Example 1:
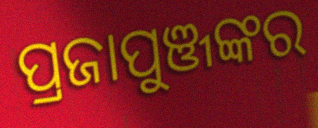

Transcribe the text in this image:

ପ୍ରଜାପୁଞ୍ଜଙ୍କର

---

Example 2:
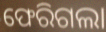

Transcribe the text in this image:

ଫେରିଗଲା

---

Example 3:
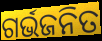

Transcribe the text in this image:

ଗର୍ଭଜନିତ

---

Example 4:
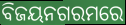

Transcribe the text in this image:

ବିଜୟନଗରମରେ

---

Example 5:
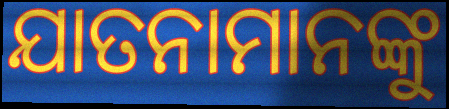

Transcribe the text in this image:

ଯାତନାମାନଙ୍କୁ